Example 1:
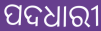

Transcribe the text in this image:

ପଦଧାରୀ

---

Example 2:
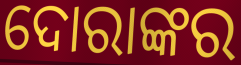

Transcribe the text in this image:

ଦୋରାଙ୍କର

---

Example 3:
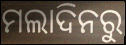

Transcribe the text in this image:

ମଲାଦିନରୁ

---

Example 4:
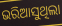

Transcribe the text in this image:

ଭରିଆସୁଥିଲା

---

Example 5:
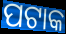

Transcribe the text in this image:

ପଟାକ